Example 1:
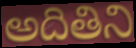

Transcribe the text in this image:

అదితిని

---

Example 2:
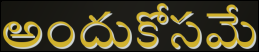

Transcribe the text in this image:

అందుకోసమే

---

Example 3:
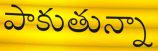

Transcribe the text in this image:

పాకుతున్నా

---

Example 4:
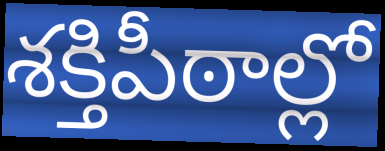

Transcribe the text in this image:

శక్తిపీఠాల్లో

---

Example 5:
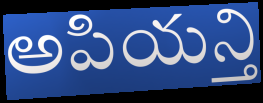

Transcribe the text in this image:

అపియన్తి